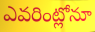
ఎవరింట్లోనూ